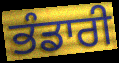
ਭੰਡਾਰੀ